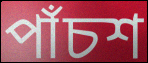
পাঁচশ